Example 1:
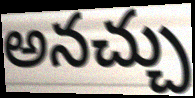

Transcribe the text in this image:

అనచ్చు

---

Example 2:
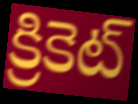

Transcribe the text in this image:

క్రికెట్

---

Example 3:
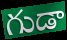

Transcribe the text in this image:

గుడా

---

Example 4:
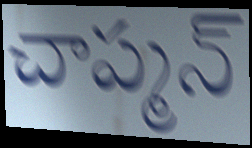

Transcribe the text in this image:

చాప్మన్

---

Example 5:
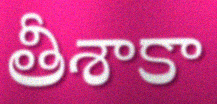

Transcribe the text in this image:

తీశాకా